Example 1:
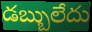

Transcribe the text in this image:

డబ్బులేదు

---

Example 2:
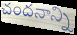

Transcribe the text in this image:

చందనాన్ని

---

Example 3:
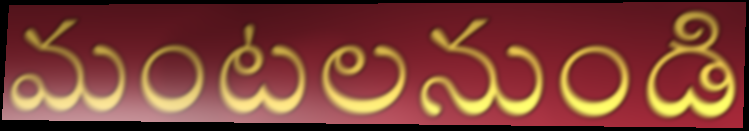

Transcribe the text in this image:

మంటలనుండి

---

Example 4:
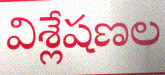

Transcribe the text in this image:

విశ్లేషణల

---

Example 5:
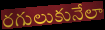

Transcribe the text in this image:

రగులుకునేలా